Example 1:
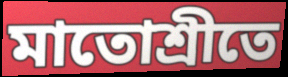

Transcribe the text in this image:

মাতোশ্রীতে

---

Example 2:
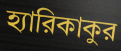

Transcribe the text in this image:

হ্যারিকাকুর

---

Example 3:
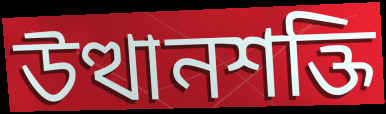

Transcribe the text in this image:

উত্থানশক্তি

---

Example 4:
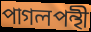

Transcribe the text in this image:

পাগলপন্থী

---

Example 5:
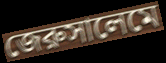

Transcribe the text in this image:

জেরুসালেমে